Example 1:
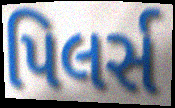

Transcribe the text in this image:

પિલર્સ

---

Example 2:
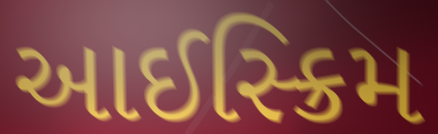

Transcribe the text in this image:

આઈસ્ક્રિમ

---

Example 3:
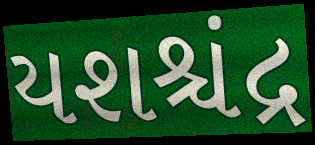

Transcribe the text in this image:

યશશ્ચંદ્ર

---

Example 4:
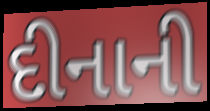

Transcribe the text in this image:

દીનાની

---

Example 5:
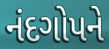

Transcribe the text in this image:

નંદગોપને